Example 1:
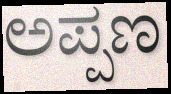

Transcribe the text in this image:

ಅಪ್ಪಣ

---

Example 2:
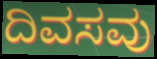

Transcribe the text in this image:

ದಿವಸವು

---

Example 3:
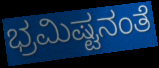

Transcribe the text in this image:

ಭ್ರಮಿಷ್ಟನಂತೆ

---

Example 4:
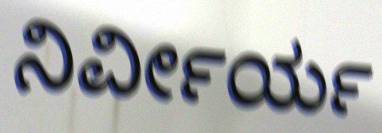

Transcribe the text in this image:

ನಿರ್ವೀರ್ಯ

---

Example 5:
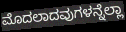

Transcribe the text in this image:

ಮೊದಲಾದವುಗಳನ್ನೆಲ್ಲಾ